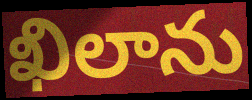
ఖిలాను